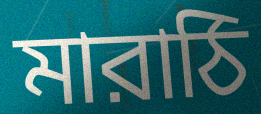
মারাঠি